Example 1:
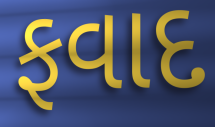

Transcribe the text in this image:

ફવાદ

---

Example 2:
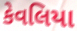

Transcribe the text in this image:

કેવલિયા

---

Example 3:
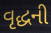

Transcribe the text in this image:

વૃદ્ધની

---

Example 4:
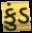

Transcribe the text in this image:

કુંડ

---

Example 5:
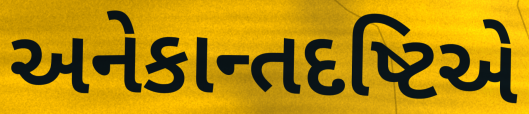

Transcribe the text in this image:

અનેકાન્તદષ્ટિએ